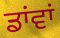
ਡਾਂਵਾਂ